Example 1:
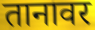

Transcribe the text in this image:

तानावर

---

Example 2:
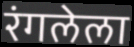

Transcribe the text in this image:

रंगलेला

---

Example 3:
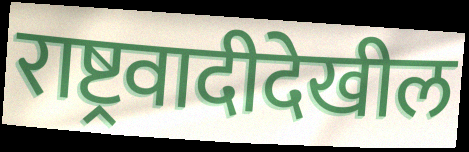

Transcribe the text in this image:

राष्ट्रवादीदेखील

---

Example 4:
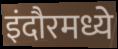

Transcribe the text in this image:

इंदौरमध्ये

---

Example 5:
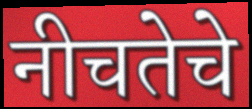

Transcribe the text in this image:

नीचतेचे